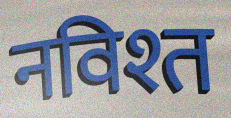
नविश्त